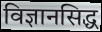
विज्ञानसिद्ध